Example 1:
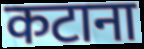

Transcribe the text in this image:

कटाना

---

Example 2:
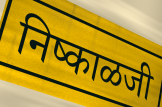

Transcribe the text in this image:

निष्काळजी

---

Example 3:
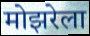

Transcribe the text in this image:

मोझरेला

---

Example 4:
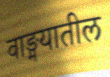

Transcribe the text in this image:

वाङ्मयातील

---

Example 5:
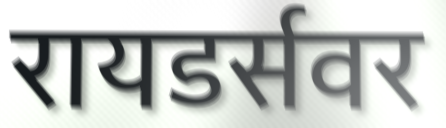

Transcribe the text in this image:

रायडर्सवर